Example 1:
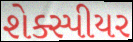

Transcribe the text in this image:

શેક્સ્પીયર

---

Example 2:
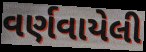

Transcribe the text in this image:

વર્ણવાયેલી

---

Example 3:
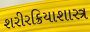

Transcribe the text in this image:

શરીરક્રિયાશાસ્ત્ર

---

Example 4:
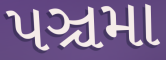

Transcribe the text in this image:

પઞ્ચમા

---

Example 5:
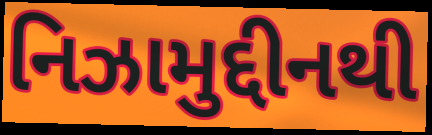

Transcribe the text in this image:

નિઝામુદ્દીનથી